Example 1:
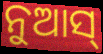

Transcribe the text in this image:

ନୁଆସ୍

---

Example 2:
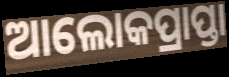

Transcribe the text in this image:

ଆଲୋକପ୍ରାପ୍ତା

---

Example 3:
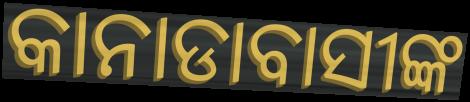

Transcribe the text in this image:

କାନାଡାବାସୀଙ୍କ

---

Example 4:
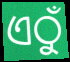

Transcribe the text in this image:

ଏଠୁଁ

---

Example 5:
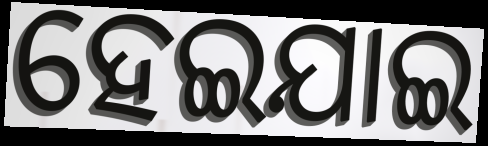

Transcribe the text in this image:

ହେଇଯାଇ